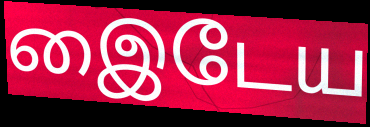
இைடேய